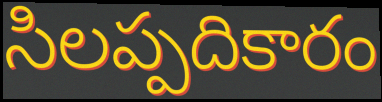
సిలప్పదికారం